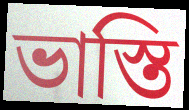
ভাস্তি